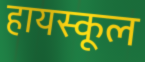
हायस्कूल